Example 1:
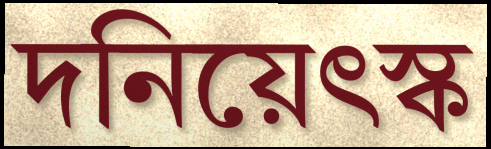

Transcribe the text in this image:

দনিয়েৎস্ক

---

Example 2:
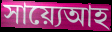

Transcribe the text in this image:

সায়্যেআহ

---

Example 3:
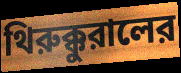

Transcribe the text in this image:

থিরুক্কুরালের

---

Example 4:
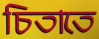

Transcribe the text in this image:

চিতাতে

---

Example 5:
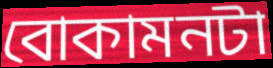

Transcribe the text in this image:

বোকামনটা